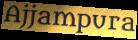
Ajjampura